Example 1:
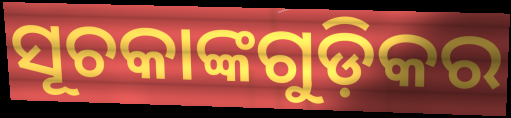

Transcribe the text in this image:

ସୂଚକାଙ୍କଗୁଡ଼ିକର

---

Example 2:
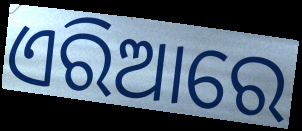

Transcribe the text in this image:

ଏରିଆରେ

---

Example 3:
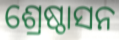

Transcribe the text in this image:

ଶ୍ରେଷ୍ଠାସନ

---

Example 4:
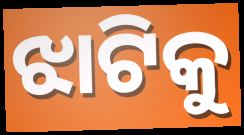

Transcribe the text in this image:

ଝାଟିକୁ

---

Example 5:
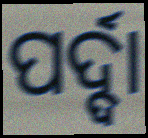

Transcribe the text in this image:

ପର୍ଦ୍ଦା